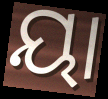
ୟା